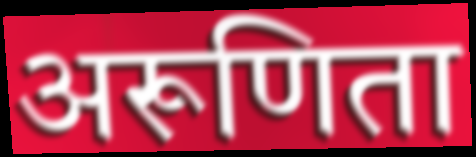
अरूणिता